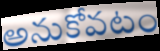
అనుకోవటం